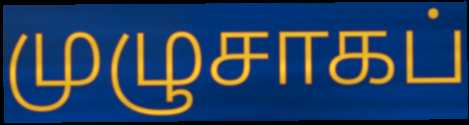
முழுசாகப்